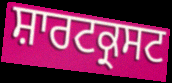
ਸ਼ਾਰਟਕ੍ਰਸਟ